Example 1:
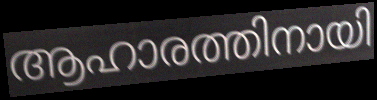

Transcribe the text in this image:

ആഹാരത്തിനായി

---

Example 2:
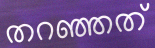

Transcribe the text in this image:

തറഞ്ഞത്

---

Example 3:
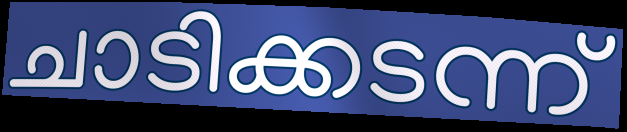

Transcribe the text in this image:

ചാടിക്കടന്ന്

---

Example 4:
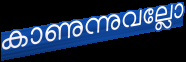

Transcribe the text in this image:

കാണുന്നുവല്ലോ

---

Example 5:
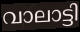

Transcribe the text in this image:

വാലാട്ടി